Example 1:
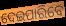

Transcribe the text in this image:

ଦେଇପାରିବେ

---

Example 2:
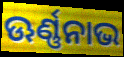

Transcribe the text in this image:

ଊର୍ଣ୍ଣନାଭ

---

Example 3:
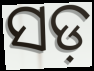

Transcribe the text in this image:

ସଡ଼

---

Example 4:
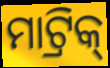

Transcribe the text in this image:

ମାଟ୍ରିକ୍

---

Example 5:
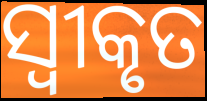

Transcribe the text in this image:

ସ୍ବୀକୃତ